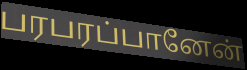
பரபரப்பானேன்